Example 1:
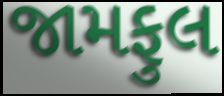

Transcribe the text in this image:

જામફુલ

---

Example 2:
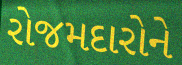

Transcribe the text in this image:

રોજમદારોને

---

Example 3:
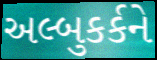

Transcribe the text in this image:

અલ્બુકર્કને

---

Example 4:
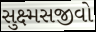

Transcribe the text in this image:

સુક્ષ્મસજીવો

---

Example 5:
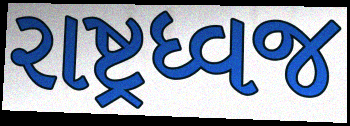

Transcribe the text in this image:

રાષ્ટ્રધ્વજ